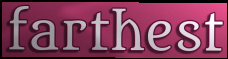
farthest